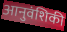
आनुवंशिकी